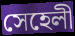
সেহেলী